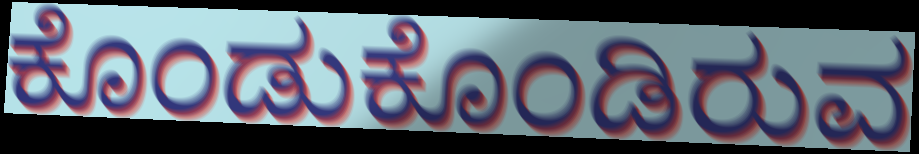
ಕೊಂಡುಕೊಂಡಿರುವ